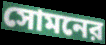
সোমনের